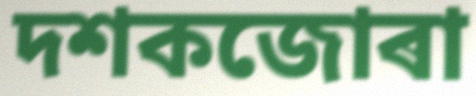
দশকজোৰা